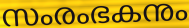
സംരംഭകനും